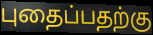
புதைப்பதற்கு